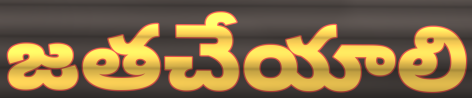
జతచేయాలి